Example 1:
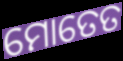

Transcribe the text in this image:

ମୋତେତ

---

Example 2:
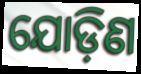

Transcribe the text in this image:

ଯୋଡ଼ିଣ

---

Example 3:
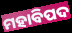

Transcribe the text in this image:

ମହାବିପଦ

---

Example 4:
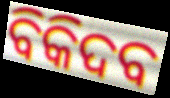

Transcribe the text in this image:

ବିକିଦବ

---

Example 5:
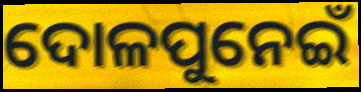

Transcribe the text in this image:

ଦୋଳପୁନେଇଁ